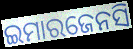
ଇମାରଜେନସି